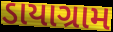
ડાયાગ્રામ